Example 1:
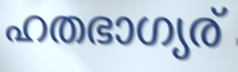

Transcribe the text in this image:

ഹതഭാഗ്യര്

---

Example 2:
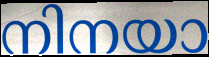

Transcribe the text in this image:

നിനയാ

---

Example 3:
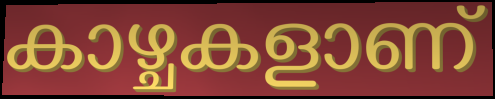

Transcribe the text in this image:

കാഴ്ചകളാണ്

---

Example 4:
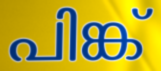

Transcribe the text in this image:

പിങ്ക്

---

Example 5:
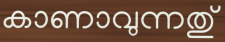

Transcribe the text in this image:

കാണാവുന്നതു്